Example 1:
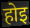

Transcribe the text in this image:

होइ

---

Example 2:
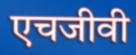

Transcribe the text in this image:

एचजीवी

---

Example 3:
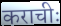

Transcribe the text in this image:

कराचीः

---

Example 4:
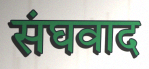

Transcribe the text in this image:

संघवाद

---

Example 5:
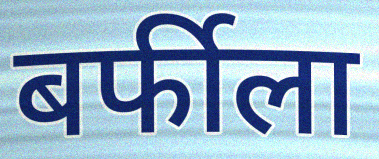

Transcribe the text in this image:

बर्फीला